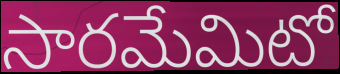
సారమేమిటో